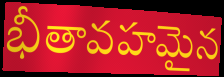
భీతావహమైన